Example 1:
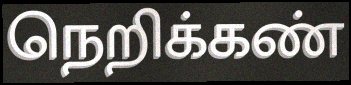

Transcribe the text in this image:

நெறிக்கண்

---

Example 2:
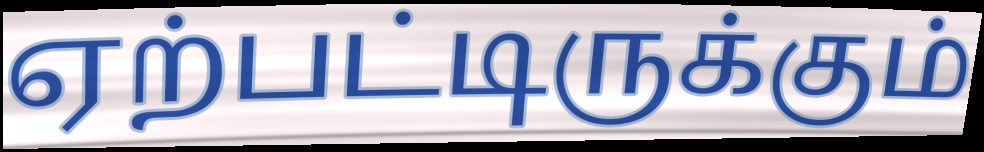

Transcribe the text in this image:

ஏற்பட்டிருக்கும்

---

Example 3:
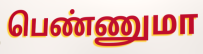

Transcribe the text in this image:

பெண்ணுமா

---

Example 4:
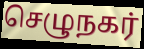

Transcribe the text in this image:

செழுநகர்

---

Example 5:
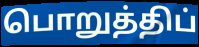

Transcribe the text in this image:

பொறுத்திப்